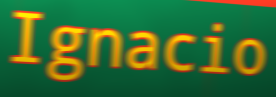
Ignacio